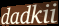
dadkii